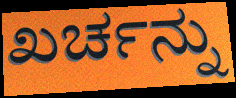
ಖರ್ಚನ್ನು